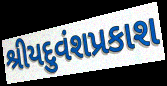
શ્રીયદુવંશપ્રકાશ